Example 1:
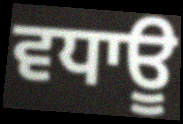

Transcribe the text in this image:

ਵਧਾਊ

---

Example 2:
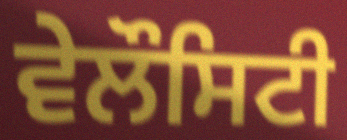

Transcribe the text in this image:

ਵੇਲੌਸਿਟੀ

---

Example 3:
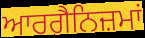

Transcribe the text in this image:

ਆਰਗੈਨਿਜ਼ਮਾਂ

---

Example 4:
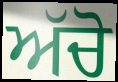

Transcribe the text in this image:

ਅੱਚੋ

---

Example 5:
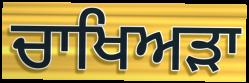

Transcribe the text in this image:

ਚਾਖਿਅੜਾ